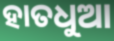
ହାତଧୁଆ